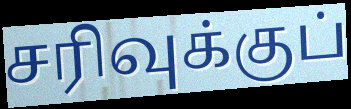
சரிவுக்குப்